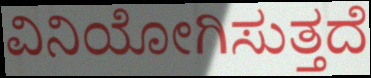
ವಿನಿಯೋಗಿಸುತ್ತದೆ